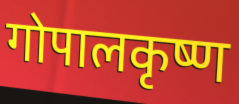
गोपालकृष्ण